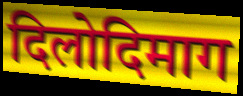
दिलोदिमाग